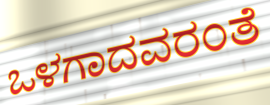
ಒಳಗಾದವರಂತೆ